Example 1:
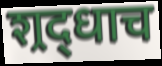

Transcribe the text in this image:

श्रद्धाच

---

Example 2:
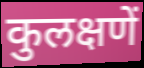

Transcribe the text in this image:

कुलक्षणें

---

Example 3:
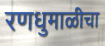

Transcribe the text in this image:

रणधुमाळीचा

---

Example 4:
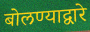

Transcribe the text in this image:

बोलण्याद्वारे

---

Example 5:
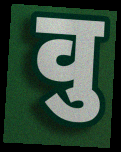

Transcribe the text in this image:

वु